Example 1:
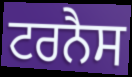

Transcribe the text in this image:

ਟਰਨੈਸ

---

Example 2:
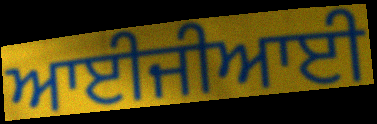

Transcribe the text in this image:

ਆਈਜੀਆਈ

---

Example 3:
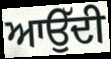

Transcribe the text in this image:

ਆਉੱਦੀ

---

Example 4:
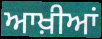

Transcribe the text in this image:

ਆਖ਼ੀਆਂ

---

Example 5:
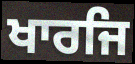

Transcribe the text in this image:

ਖਾਰਜਿ